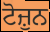
ਟੋਜ਼ੁਨ